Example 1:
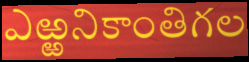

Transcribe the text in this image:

ఎఱ్ఱనికాంతిగల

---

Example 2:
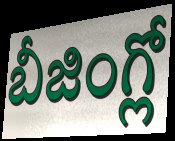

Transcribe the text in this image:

బీజింగ్లో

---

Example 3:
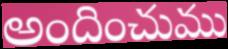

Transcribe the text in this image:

అందించుము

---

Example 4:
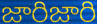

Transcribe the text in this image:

జారిజారి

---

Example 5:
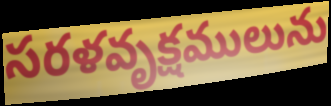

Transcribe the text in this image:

సరళవృక్షములును